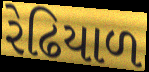
રેઢિયાળ